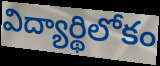
విద్యార్థిలోకం